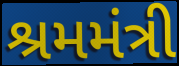
શ્રમમંત્રી